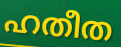
ഹതീത